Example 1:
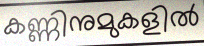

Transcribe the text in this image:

കണ്ണിനുമുകളിൽ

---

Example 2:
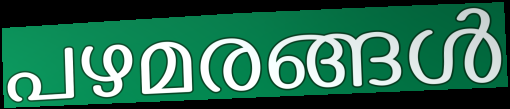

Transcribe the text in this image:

പഴമരങ്ങൾ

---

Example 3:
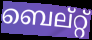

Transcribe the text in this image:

ബെല്റ്റ്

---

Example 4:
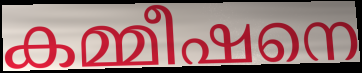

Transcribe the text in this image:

കമ്മീഷനെ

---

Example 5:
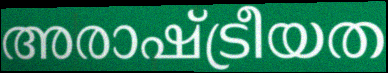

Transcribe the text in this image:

അരാഷ്ട്രീയത